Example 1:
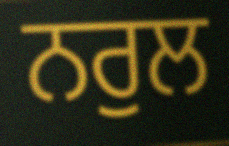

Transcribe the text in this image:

ਨਰੁਲ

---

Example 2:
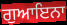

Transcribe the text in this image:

ਗੁਆਇਨਾ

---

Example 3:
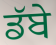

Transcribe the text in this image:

ਡੱਬੇ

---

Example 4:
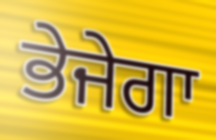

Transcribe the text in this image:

ਭੇਜੇਗਾ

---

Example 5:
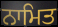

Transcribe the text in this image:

ਨਾਮਿਤ